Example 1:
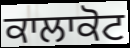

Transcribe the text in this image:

ਕਾਲਾਕੋਟ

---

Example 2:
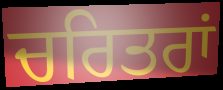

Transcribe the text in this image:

ਚਰਿਤਰਾਂ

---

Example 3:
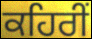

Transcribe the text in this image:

ਕਹਿਰੀਂ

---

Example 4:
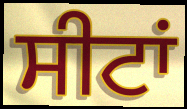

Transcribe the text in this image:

ਸੀਟਾਂ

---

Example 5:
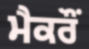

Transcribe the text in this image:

ਮੈਕਰੌਂ